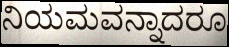
ನಿಯಮವನ್ನಾದರೂ